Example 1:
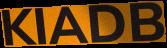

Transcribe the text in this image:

KIADB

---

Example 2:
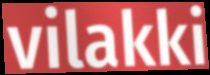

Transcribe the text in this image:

vilakki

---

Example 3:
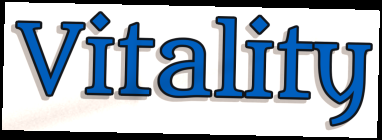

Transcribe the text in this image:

Vitality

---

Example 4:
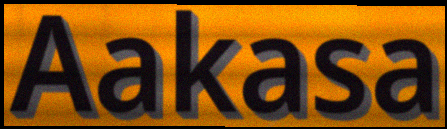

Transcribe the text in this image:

Aakasa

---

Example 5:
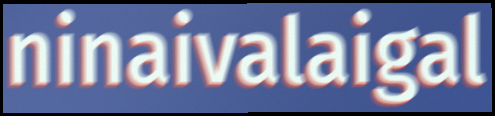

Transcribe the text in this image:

ninaivalaigal